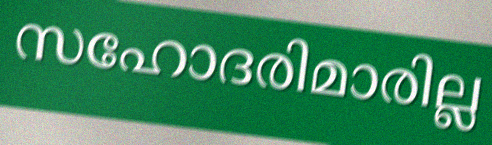
സഹോദരിമാരില്ല